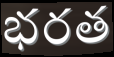
భరత